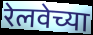
रेलवेच्या